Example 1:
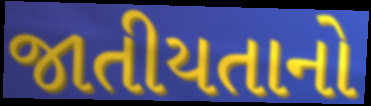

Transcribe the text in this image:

જાતીયતાનો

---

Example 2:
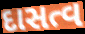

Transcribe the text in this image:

દાસત્વ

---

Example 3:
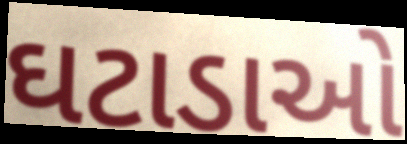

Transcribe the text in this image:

ઘટાડાઓ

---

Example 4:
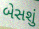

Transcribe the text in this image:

બેસશું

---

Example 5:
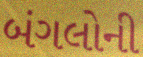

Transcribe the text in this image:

બંગલોની